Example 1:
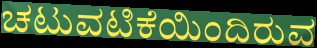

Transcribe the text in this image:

ಚಟುವಟಿಕೆಯಿಂದಿರುವ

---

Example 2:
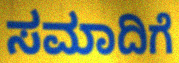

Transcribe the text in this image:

ಸಮಾದಿಗೆ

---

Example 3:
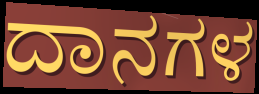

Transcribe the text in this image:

ದಾನಗಳ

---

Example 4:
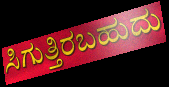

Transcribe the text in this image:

ಸಿಗುತ್ತಿರಬಹುದು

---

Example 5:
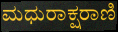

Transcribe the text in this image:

ಮಧುರಾಕ್ಷರಾಣಿ